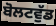
ਬੋਲਟਵੁੱਡ